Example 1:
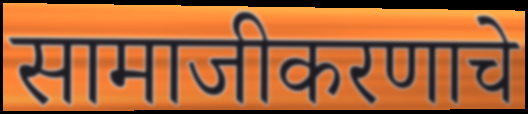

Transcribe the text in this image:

सामाजीकरणाचे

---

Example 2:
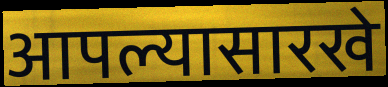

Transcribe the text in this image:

आपल्यासारखे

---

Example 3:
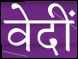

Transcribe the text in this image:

वेदीं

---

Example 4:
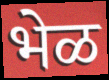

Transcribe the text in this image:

भेळ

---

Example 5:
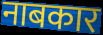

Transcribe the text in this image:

नाबकार